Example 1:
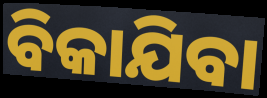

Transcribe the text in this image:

ବିକାଯିବା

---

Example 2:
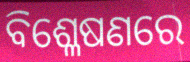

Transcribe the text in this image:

ବିଶ୍ଳେଷଣରେ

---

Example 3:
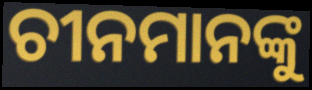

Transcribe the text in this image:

ଚୀନମାନଙ୍କୁ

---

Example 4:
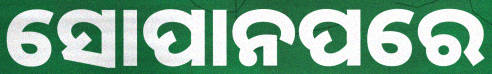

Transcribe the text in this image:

ସୋପାନପରେ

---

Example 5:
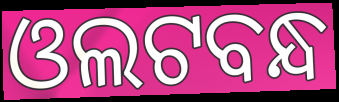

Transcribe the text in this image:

ଓଲଟବନ୍ଧ